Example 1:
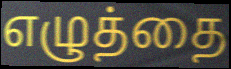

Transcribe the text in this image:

எழுத்தை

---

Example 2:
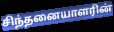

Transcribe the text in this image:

சிந்தனையாளரின்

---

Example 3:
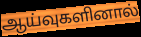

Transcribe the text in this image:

ஆய்வுகளினால்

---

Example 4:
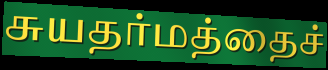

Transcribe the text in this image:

சுயதர்மத்தைச்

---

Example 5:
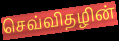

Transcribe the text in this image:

செவ்விதழின்